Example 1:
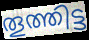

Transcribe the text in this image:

തൂത്തിട്ട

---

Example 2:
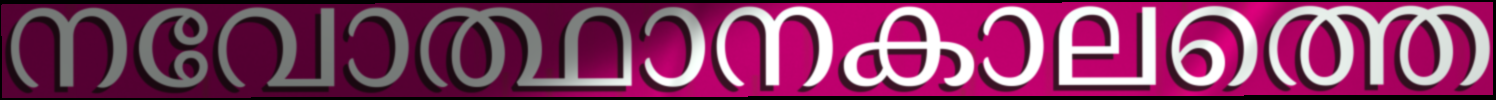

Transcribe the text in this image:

നവോത്ഥാനകാലത്തെ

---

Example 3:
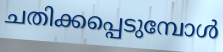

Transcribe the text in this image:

ചതിക്കപ്പെടുമ്പോൾ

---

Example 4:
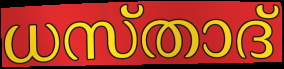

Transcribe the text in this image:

ധസ്താദ്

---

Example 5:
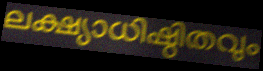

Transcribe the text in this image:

ലക്ഷ്യാധിഷ്ഠിതവും